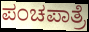
ಪಂಚಪಾತ್ರೆ